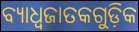
ବ୍ୟାଧ୍ଵଜାତକଗୁଡ଼ିକ